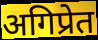
अगिप्रेत